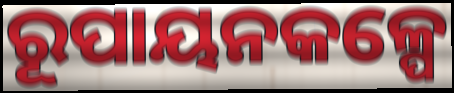
ରୂପାୟନକଳ୍ପେ